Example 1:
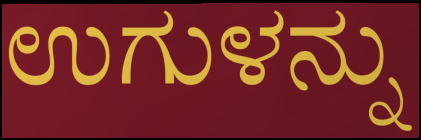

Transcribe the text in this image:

ಉಗುಳನ್ನು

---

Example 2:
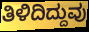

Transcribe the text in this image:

ತಿಳಿದಿದ್ದುವು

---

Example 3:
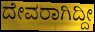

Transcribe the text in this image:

ದೇವರಾಗಿದ್ದೀ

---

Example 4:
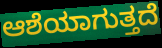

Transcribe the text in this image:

ಆಶೆಯಾಗುತ್ತದೆ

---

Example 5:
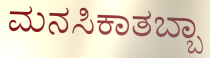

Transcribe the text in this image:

ಮನಸಿಕಾತಬ್ಬಾ